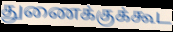
துணைக்குக்கூட